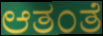
ಆತಂತೆ